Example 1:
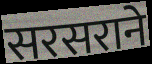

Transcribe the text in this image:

सरसराने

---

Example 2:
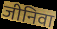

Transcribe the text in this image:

जीनिवा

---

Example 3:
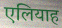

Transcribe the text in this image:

एलियाह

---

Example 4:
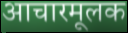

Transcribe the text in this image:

आचारमूलक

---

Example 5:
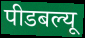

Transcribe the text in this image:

पीडबल्यू